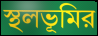
স্থলভূমির